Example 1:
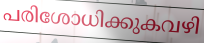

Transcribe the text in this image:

പരിശോധിക്കുകവഴി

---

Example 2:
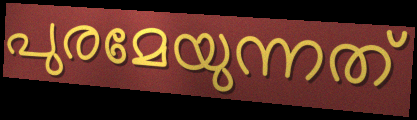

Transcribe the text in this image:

പുരമേയുന്നത്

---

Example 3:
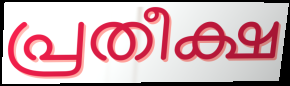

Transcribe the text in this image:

പ്രതീക്ഷ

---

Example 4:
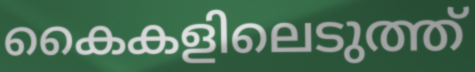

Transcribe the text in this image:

കൈകളിലെടുത്ത്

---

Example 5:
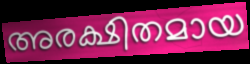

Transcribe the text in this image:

അരക്ഷിതമായ